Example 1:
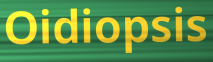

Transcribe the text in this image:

Oidiopsis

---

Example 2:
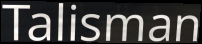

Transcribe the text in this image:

Talisman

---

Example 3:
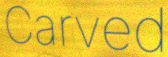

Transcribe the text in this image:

Carved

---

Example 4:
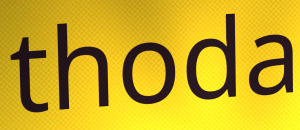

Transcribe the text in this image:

thoda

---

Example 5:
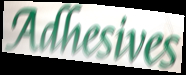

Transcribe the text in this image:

Adhesives